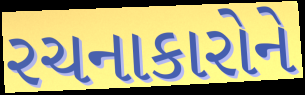
રચનાકારોને